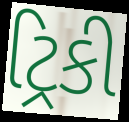
ટ્રિકી